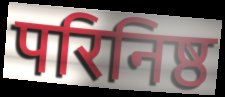
परिनिष्ठ